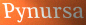
Pynursa